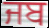
ਜਬ